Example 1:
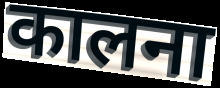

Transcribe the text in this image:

कालना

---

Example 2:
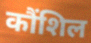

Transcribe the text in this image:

कौंशिल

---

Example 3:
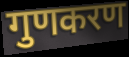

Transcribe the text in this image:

गुणकरण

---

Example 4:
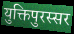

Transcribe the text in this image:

युक्तिपुरस्सर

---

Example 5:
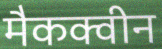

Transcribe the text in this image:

मैकक्वीन